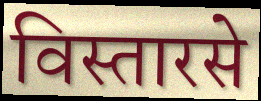
विस्तारसे